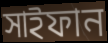
সাইফান